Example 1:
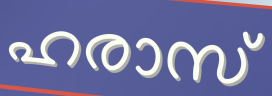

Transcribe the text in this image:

ഹരാസ്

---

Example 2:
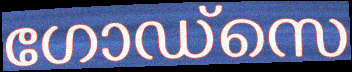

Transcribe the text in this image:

ഗോഡ്സെ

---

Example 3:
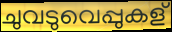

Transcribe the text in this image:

ചുവടുവെപ്പുകള്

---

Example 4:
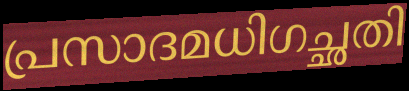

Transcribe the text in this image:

പ്രസാദമധിഗച്ഛതി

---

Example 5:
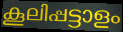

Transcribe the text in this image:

കൂലിപ്പട്ടാളം